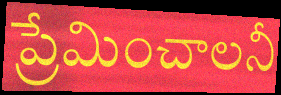
ప్రేమించాలనీ